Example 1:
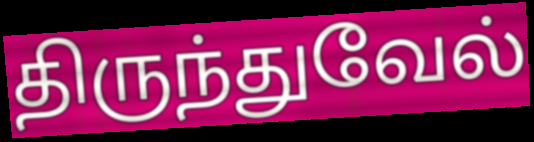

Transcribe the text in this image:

திருந்துவேல்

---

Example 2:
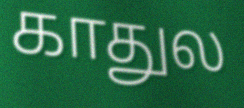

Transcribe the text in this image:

காதுல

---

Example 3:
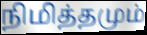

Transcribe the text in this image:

நிமித்தமும்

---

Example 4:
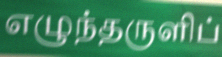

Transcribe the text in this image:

எழுந்தருளிப்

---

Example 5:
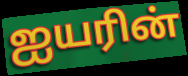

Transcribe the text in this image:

ஐயரின்